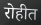
रोहीत